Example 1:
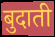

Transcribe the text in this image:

बुदाती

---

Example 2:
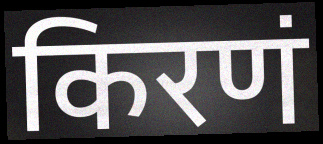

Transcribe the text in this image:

किरणं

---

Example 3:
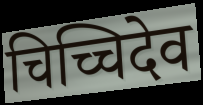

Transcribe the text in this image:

चिच्चिदेव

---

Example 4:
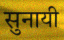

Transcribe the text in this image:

सुनायी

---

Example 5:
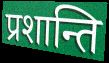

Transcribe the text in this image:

प्रशान्ति